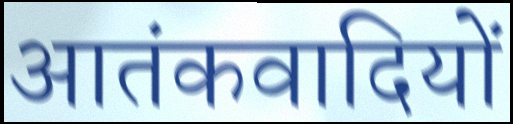
आतंकवादियों